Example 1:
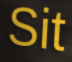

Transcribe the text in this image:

Sit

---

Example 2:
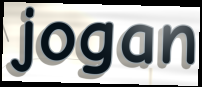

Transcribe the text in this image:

jogan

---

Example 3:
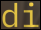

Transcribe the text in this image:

di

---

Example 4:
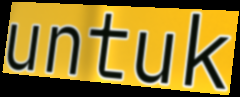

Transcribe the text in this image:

untuk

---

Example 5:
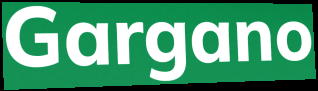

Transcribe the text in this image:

Gargano